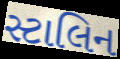
સ્ટાલિન